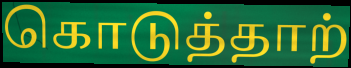
கொடுத்தாற்